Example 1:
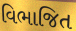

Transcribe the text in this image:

વિભાજિત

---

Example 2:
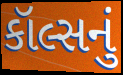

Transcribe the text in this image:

કૉલ્સનું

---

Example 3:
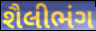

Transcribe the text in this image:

શૈલીભંગ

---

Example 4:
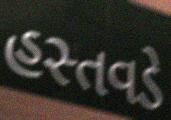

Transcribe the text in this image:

હસ્તવડે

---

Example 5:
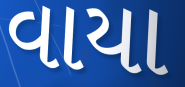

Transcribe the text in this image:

વાયા